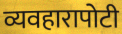
व्यवहारापोटी